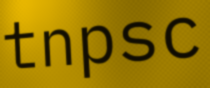
tnpsc